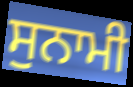
ਸੁਨਾਮੀ